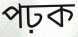
পঢ়ক